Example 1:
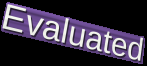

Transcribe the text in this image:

Evaluated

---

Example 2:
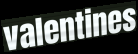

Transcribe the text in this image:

valentines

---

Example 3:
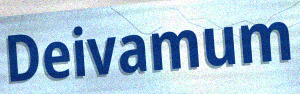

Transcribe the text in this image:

Deivamum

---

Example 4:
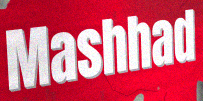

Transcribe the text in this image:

Mashhad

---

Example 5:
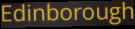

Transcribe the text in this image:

Edinborough